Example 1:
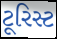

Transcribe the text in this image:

ટૂરિસ્ટ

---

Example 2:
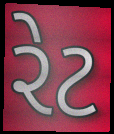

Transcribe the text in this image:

રેટ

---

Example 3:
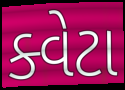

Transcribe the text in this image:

ક્વેટા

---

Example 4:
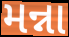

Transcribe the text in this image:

મન્ના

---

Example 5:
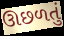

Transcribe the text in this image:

ઊછળતું